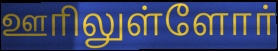
ஊரிலுள்ளோர்